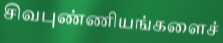
சிவபுண்ணியங்களைச்